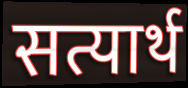
सत्यार्थ